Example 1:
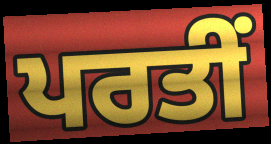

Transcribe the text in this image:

ਪਰਤੀਂ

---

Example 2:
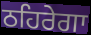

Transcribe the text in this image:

ਠਹਿਰੇਗਾ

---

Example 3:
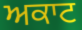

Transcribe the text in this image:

ਅਕਾਟ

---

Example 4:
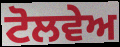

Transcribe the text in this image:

ਟੋਲਵੇਅ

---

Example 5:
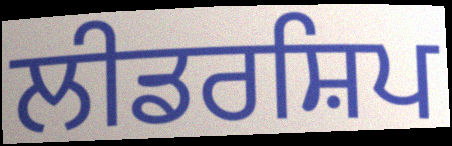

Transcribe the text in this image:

ਲੀਡਰਸ਼ਿਪ